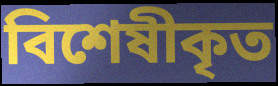
বিশেষীকৃত